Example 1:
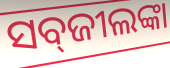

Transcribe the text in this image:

ସବ୍‌ଜୀଲଙ୍କା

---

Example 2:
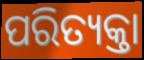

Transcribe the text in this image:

ପରିତ୍ୟକ୍ତା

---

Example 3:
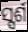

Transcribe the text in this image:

ସ୍ସର୍ଶ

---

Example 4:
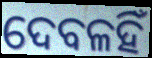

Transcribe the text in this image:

ଦେବଳହିଁ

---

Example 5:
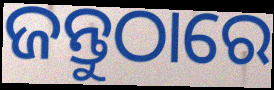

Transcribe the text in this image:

ଜନ୍ତୁଠାରେ